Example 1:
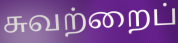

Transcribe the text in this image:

சுவற்றைப்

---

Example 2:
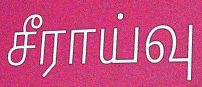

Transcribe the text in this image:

சீராய்வு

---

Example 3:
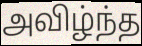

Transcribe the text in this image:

அவிழ்ந்த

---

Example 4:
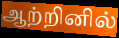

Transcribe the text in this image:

ஆற்றினில்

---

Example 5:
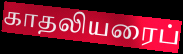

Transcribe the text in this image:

காதலியரைப்